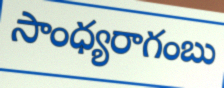
సాంధ్యరాగంబు